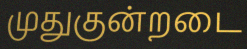
முதுகுன்றடை